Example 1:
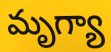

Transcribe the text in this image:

మృగ్యా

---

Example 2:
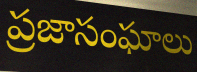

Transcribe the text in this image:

ప్రజాసంఘాలు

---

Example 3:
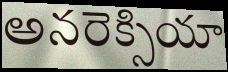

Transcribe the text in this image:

అనరెక్సియా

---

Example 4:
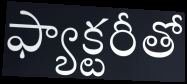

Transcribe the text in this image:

ఫ్యాక్టరీతో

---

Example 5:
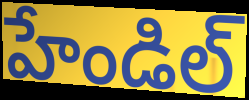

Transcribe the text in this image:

హేండిల్